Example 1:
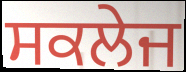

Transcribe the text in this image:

ਸਕਲੇਜ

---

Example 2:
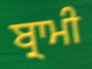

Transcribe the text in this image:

ਬ੍ਰਾਮੀ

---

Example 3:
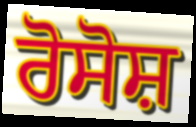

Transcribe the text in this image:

ਰੋਸੋਸ਼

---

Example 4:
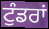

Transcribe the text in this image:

ਟੁੰਡਰਾਂ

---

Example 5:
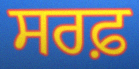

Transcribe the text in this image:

ਸਰਫ਼